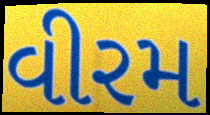
વીરમ